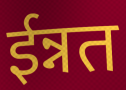
ईन्नत